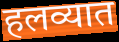
हलव्यात